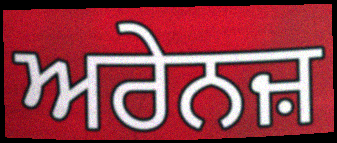
ਅਰੇਨਜ਼